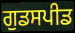
ਗੁਡਸਪੀਡ